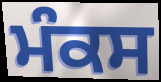
ਮੰਕਸ